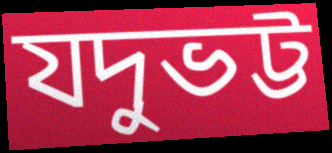
যদুভট্ট